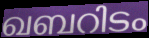
ഖബറിടം